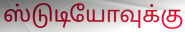
ஸ்டுடியோவுக்கு